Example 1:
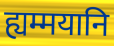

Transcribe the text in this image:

ह्यम्मयानि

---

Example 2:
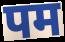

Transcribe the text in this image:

पम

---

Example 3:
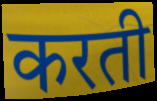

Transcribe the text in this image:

करती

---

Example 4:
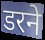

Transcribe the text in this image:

डरने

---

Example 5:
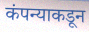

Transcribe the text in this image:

कंपन्याकडून